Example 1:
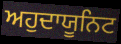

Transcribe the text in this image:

ਅਹੁਦਾਯੂਨਿਟ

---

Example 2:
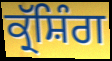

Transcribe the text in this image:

ਕ੍ਰੱਸ਼ਿੰਗ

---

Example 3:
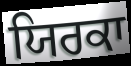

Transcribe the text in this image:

ਯਿਰਕਾ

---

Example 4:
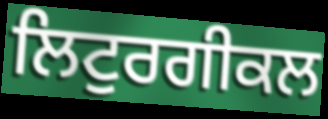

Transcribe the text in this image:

ਲਿਟੁਰਗੀਕਲ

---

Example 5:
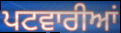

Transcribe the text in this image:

ਪਟਵਾਰੀਆਂ